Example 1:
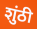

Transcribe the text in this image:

शुंठी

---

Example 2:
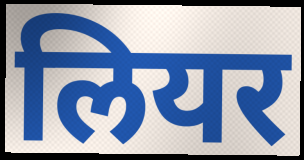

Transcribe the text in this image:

लियर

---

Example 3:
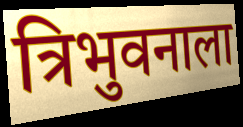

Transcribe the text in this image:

त्रिभुवनाला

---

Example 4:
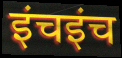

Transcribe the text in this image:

इंचइंच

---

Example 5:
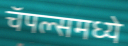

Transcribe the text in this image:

चॅपल्समध्ये